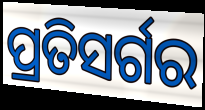
ପ୍ରତିସର୍ଗର